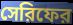
সেরিফের